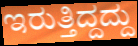
ಇರುತ್ತಿದ್ದದ್ದು